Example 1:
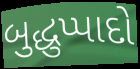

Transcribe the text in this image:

બુદ્ધુપ્પાદો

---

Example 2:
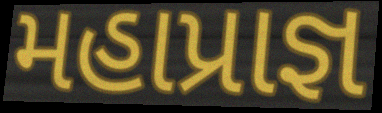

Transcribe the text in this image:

મહાપ્રાજ્ઞ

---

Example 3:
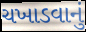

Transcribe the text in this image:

ચખાડવાનું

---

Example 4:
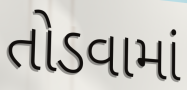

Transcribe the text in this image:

તોડવામાં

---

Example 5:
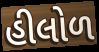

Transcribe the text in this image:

હીલોળ